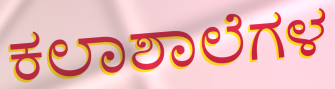
ಕಲಾಶಾಲೆಗಳ